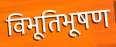
विभूतिभूषण